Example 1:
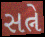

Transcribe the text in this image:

સત્ને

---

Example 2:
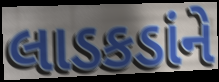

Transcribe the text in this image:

લાડકડાંને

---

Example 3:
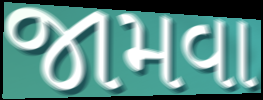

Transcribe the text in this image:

જામવા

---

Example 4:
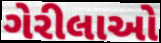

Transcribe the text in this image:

ગેરીલાઓ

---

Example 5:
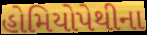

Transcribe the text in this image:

હોમિયોપેથીના